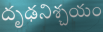
దృఢనిశ్చయం